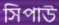
সিপাউ